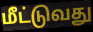
மீட்டுவது